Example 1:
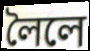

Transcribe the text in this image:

লৈলে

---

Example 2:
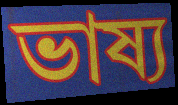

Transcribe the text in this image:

ভাষ্য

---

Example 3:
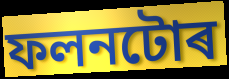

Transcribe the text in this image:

ফলনটোৰ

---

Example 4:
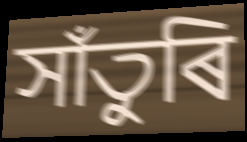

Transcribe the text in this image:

সাঁতুৰি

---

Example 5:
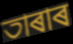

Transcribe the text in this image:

তাৰাৰ